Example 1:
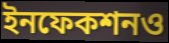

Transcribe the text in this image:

ইনফেকশনও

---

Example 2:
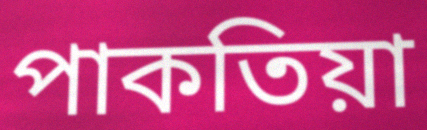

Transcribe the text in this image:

পাকতিয়া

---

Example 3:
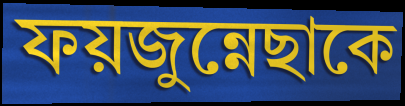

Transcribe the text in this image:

ফয়জুন্নেছাকে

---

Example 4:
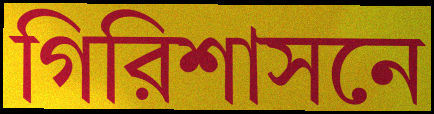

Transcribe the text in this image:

গিরিশাসনে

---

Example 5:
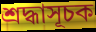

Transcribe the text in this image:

শ্রদ্ধাসূচক